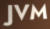
JVM